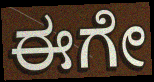
ಈಗೇ